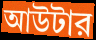
আউটার